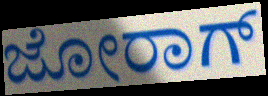
ಜೋರಾಗ್